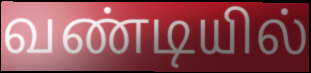
வண்டியில்